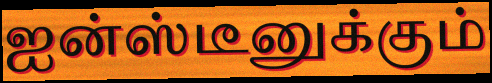
ஐன்ஸ்டீனுக்கும்